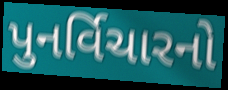
પુનર્વિચારનો